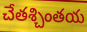
చేతశ్చింతయ